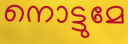
നൊട്ടുമേ